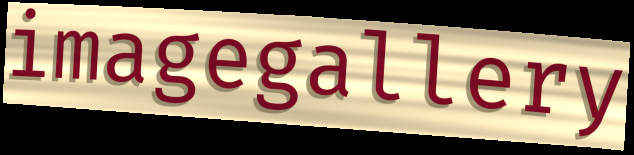
imagegallery